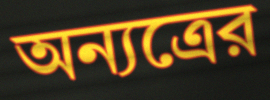
অন্যত্রের